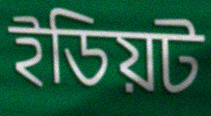
ইডিয়ট